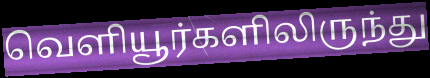
வெளியூர்களிலிருந்து